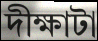
দীক্ষাটা